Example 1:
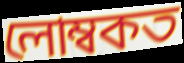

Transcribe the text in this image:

লোম্বকত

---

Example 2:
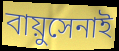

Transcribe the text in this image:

বায়ুসেনাই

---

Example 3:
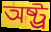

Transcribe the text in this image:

অষ্ট্ৰ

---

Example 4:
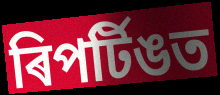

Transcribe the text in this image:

ৰিপৰ্টিঙত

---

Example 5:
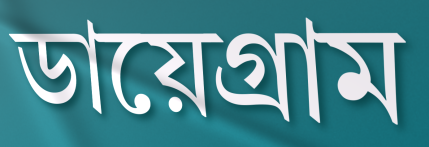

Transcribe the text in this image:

ডায়েগ্ৰাম